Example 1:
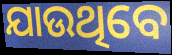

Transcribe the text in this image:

ଯାଉଥିବେ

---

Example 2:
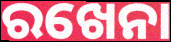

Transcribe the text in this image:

ରଖେନା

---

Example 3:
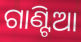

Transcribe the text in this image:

ଗାଣ୍ଟିଆ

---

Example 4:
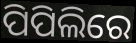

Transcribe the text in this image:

ପିପିଲିରେ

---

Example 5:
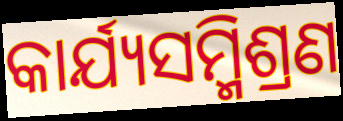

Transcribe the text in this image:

କାର୍ଯ୍ୟସମ୍ମିଶ୍ରଣ